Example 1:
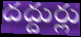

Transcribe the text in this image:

దద్దుర్లు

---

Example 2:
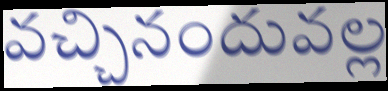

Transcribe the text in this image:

వచ్చినందువల్ల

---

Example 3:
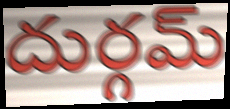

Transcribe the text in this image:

దుర్గమ్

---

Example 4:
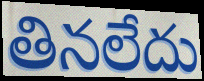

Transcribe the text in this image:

తినలేదు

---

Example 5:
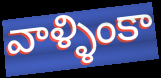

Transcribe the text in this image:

వాళ్ళింకా